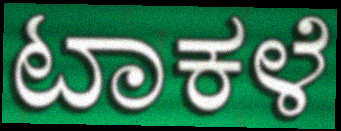
ಟಾಕಳೆ